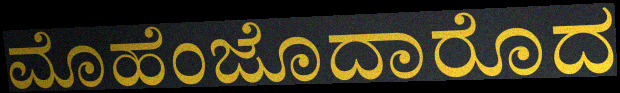
ಮೊಹೆಂಜೊದಾರೊದ